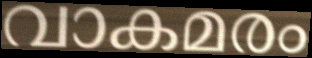
വാകമരം